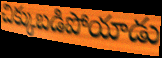
చిక్కుబడిపోయాడు